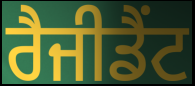
ਰੈਜੀਡੈਂਟ